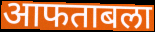
आफताबला